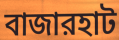
বাজারহাট